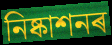
নিষ্কাশনৰ